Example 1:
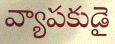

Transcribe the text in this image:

వ్యాపకుడై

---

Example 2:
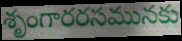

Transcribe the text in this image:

శృంగారరసమునకు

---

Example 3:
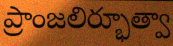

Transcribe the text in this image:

ప్రాంజలిర్భూత్వా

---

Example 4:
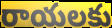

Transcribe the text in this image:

రాయలకు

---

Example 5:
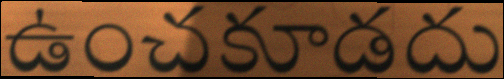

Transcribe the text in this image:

ఉంచకూడదు